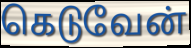
கெடுவேன்